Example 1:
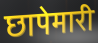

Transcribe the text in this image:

छापेमारी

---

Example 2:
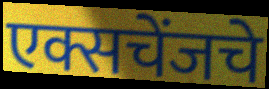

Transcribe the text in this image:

एक्सचेंजचे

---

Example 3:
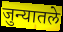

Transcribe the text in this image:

जुन्यातले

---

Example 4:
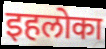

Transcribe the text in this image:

इहलोका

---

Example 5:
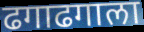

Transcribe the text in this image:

ढगाढगाला